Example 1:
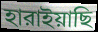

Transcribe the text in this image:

হারাইয়াছি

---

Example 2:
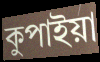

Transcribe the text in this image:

কুপাইয়া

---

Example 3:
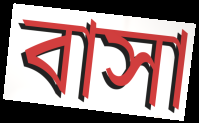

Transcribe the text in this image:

বাসা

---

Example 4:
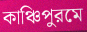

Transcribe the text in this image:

কাঞ্চিপুরমে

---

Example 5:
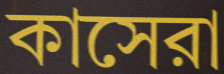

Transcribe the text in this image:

কাসেরা